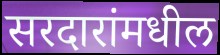
सरदारांमधील